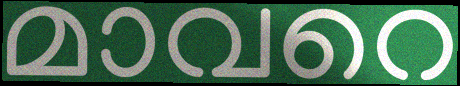
മാവറെ